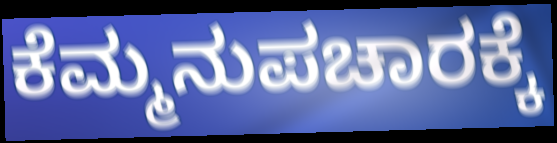
ಕೆಮ್ಮನುಪಚಾರಕ್ಕೆ